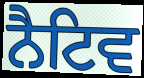
ਨੈਟਿਵ